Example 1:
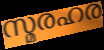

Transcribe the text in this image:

സ്മരഹര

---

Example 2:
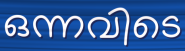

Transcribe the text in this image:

ഒന്നവിടെ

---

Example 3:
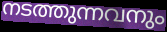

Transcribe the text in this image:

നടത്തുന്നവനും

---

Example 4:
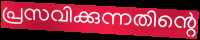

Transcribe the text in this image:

പ്രസവിക്കുന്നതിന്റെ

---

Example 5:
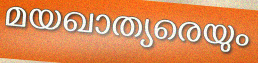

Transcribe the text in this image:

മയഖാത്യരെയും